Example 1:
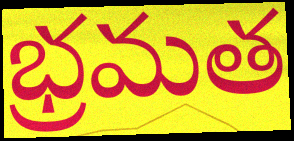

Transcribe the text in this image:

భ్రమత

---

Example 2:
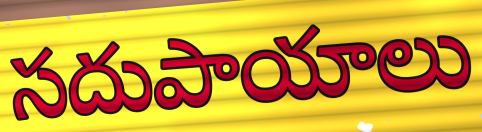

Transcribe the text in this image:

సదుపాయాలు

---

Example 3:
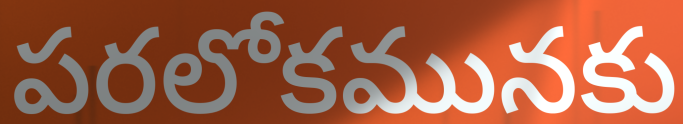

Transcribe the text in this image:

పరలోకమునకు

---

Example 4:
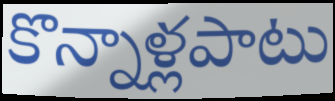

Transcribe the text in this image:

కొన్నాళ్లపాటు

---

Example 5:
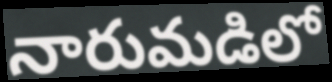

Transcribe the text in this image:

నారుమడిలో